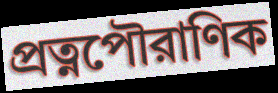
প্রত্নপৌরাণিক